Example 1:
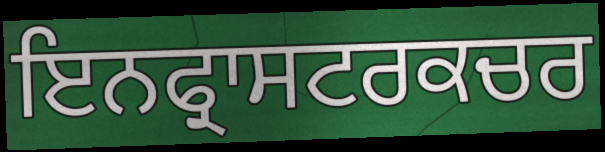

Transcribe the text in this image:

ਇਨਫ੍ਰਾਸਟਰਕਚਰ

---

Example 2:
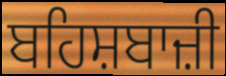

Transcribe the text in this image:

ਬਹਿਸ਼ਬਾਜ਼ੀ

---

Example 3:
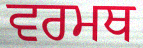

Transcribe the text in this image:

ਵਰਮਥ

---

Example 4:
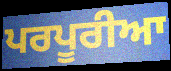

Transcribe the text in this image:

ਪਰਪੂਰੀਆ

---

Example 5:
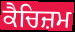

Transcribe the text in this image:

ਕੈਚਿਜ਼ਮ